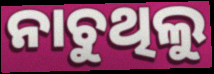
ନାଚୁଥିଲୁ